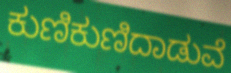
ಕುಣಿಕುಣಿದಾಡುವೆ